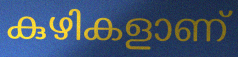
കുഴികളാണ്